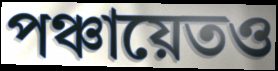
পঞ্চায়েতও